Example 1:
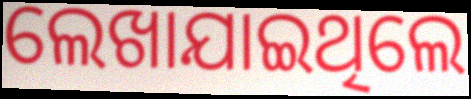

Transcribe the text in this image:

ଲେଖାଯାଇଥିଲେ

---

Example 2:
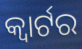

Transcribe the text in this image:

କ୍ଵାର୍ଟର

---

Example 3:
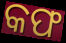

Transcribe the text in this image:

କଫ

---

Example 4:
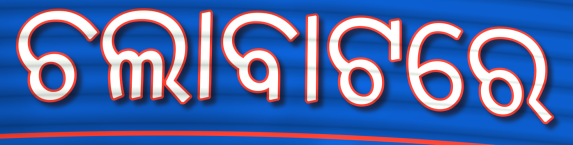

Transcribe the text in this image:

ଚଲାବାଟରେ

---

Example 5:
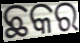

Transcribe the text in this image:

ଛକର